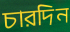
চারদিন